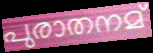
പുരാതനമ്